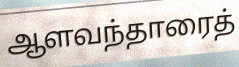
ஆளவந்தாரைத்